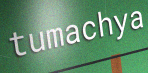
tumachya